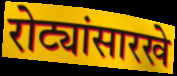
रोट्यांसारखे